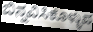
ಬಿನ್ನವಿಸಿಕೊಳ್ಳುವ